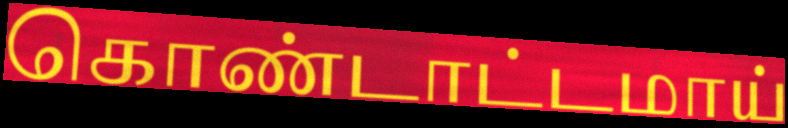
கொண்டாட்டமாய்